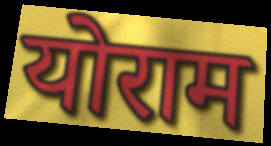
योराम